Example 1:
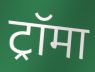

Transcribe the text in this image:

ट्रॉमा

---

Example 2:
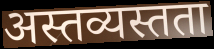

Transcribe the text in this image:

अस्तव्यस्तता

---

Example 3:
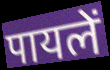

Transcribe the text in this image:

पायलें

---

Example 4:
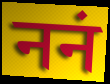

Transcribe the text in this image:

ननं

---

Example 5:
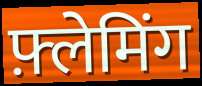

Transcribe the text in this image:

फ़्लेमिंग